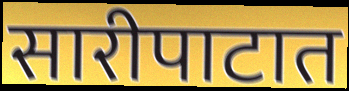
सारीपाटात